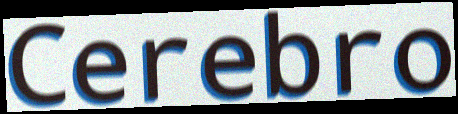
Cerebro